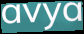
avya